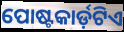
ପୋଷ୍ଟକାର୍ଡ଼ଟିଏ